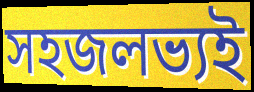
সহজলভ্যই